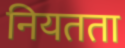
नियतता